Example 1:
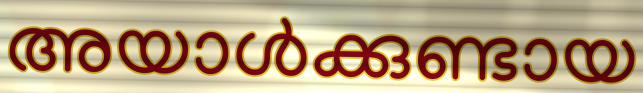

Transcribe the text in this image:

അയാൾക്കുണ്ടായ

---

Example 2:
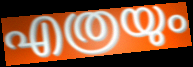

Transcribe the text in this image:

എത്രയും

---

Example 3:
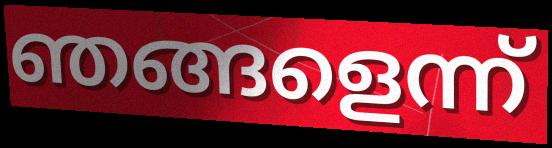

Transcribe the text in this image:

ഞങ്ങളെന്ന്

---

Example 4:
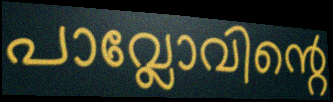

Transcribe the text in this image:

പാവ്ലോവിന്റെ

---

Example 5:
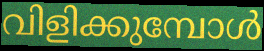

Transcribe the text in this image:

വിളിക്കുമ്പോൾ